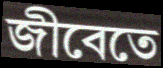
জীবেতে